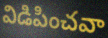
విడిపించవా